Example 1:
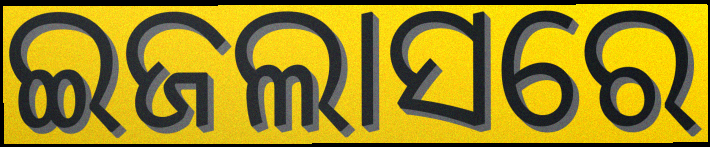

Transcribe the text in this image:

ଇଜଲାସରେ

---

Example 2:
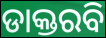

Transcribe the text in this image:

ଡାକ୍ତରବି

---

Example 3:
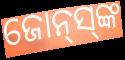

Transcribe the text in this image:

ଜୋନ୍‌ସ୍‌ଙ୍କ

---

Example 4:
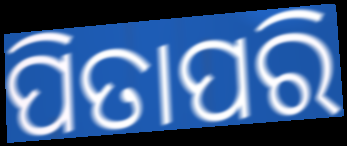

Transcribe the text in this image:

ପିତାପରି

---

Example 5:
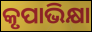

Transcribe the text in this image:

କୃପାଭିକ୍ଷା